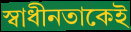
স্বাধীনতাকেই